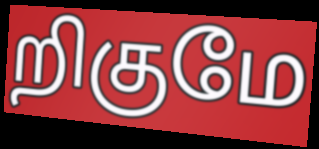
றிகுமே